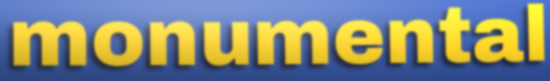
monumental